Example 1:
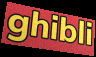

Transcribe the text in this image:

ghibli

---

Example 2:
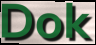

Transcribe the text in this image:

Dok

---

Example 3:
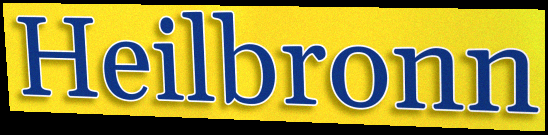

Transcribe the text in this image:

Heilbronn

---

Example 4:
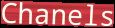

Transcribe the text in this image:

Chanels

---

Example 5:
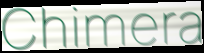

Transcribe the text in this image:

Chimera